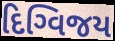
દિગ્વિજય